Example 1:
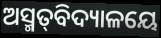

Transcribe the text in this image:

ଅସ୍ମତ୍‌ବିଦ୍ୟାଳୟେ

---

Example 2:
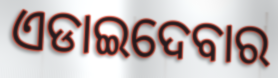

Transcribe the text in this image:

ଏଡାଇଦେବାର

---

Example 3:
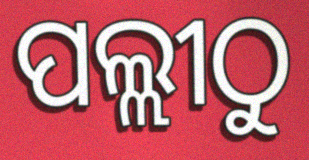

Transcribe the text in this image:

ପଲ୍ଲୀଠୁ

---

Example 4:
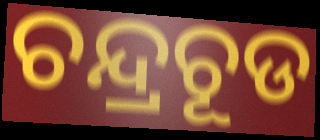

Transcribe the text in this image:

ଚନ୍ଦ୍ରଚୂଡ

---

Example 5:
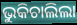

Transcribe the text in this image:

ଭୁକିଚାଲିଲା